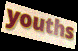
youths